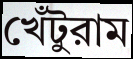
খেঁটুরাম